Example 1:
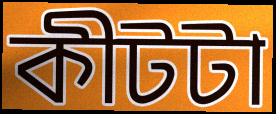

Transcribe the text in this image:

কীটটা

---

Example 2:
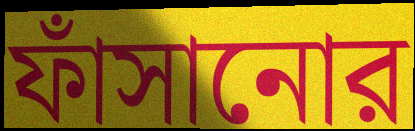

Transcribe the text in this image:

ফাঁসানোর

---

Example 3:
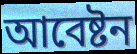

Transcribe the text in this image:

আবেষ্টন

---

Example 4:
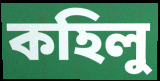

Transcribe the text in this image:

কহিলু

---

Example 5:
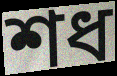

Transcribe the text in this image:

শধ